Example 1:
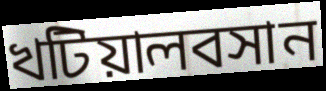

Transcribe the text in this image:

খটিয়ালবসান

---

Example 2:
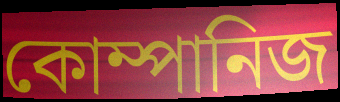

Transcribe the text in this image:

কোম্পানিজ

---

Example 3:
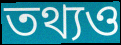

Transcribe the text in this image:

তথ্যও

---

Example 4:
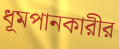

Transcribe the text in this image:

ধূমপানকারীর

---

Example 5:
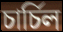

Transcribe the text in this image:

চার্চিল